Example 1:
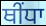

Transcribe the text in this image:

ਥੀਂਧਾ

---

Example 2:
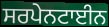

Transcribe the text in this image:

ਸਰਪੇਨਟਾਈਨ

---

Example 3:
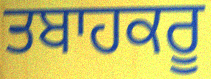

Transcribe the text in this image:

ਤਬਾਹਕਰੂ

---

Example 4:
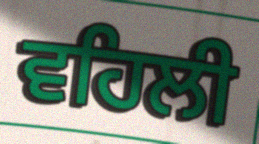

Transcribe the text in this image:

ਵਹਿਲੀ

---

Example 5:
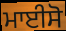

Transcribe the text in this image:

ਮਾਈਸੋ